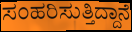
ಸಂಹರಿಸುತ್ತಿದ್ದಾನೆ